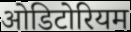
ओडिटोरियम